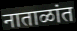
नाताळांत